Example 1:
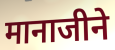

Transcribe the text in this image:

मानाजीने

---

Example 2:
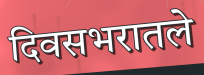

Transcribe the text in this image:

दिवसभरातले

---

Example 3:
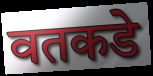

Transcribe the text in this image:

वतकडे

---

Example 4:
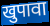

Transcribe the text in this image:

खुपावा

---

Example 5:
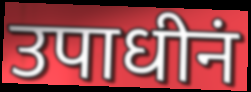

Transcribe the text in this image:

उपाधीनं